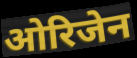
ओरिजेन